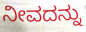
ನೀವದನ್ನು